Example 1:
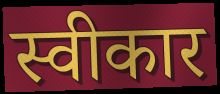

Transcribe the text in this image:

स्वीकार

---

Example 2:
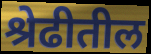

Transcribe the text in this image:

श्रेढीतील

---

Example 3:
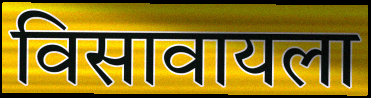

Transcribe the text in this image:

विसावायला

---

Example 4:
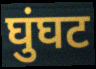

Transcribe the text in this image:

घुंघट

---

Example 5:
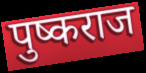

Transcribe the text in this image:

पुष्कराज